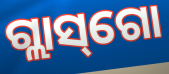
ଗ୍ଲାସ୍‌ଗୋ